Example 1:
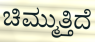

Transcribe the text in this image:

ಚಿಮ್ಮುತ್ತಿದೆ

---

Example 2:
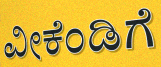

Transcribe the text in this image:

ವೀಕೆಂಡಿಗೆ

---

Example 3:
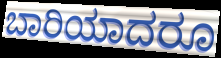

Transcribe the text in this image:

ಬಾರಿಯಾದರೂ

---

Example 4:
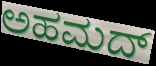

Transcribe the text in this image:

ಅಹಮದ್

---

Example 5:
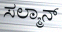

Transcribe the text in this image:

ಸಲ್ಮಾನ್